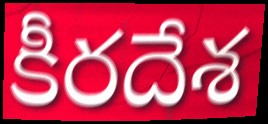
కీరదేశ